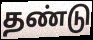
தண்டு